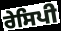
ਰੇਸਿਪੀ